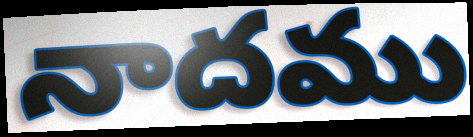
నాదము